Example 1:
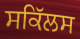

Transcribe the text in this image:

ਸਕਿੱਲਸ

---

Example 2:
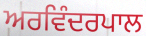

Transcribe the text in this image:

ਅਰਵਿੰਦਰਪਾਲ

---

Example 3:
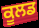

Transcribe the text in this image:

ਕੂਲਡ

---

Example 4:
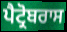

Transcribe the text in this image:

ਪੈਟ੍ਰੋਬਰਾਸ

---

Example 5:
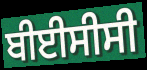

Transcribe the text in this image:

ਬੀਈਸੀਸੀ